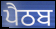
ਪੈਠਬ